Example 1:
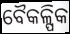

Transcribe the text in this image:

ବୈକଳ୍ପିକ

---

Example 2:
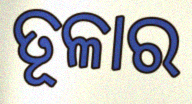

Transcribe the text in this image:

ତୂଳାର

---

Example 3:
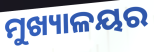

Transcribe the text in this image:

ମୁଖ୍ୟାଳୟର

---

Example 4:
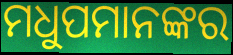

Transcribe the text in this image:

ମଧୁପମାନଙ୍କର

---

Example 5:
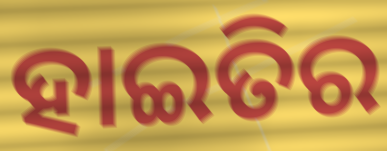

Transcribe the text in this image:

ହାଇତିର